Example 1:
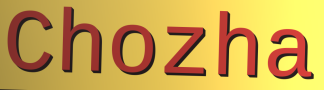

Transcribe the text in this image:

Chozha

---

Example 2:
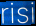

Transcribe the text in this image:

risi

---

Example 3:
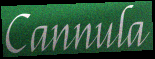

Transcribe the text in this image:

Cannula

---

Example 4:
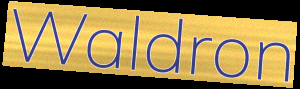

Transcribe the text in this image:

Waldron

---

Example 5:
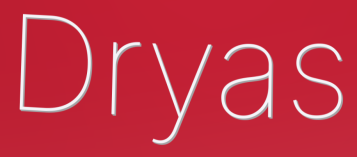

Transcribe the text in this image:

Dryas